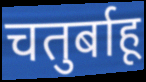
चतुर्बाहू